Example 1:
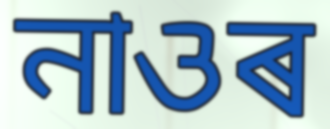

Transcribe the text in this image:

নাওৰ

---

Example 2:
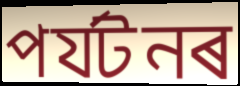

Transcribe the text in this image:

পৰ্যটনৰ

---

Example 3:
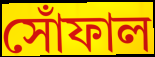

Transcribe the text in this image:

সোঁফাল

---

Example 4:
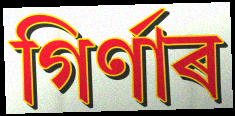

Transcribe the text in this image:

গিৰ্ণাৰ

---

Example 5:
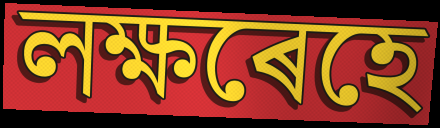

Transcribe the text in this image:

লক্ষৰেহে